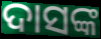
ଦାସଙ୍କ